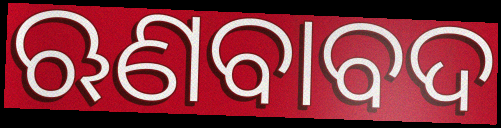
ଋଣବାବଦ